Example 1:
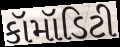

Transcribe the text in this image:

કૉમૉડિટી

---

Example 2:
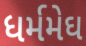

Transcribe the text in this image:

ધર્મમેઘ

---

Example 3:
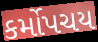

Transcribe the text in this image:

કર્મોપચય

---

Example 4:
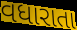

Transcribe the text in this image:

વધારાતા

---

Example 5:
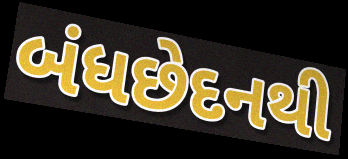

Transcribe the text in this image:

બંધછેદનથી